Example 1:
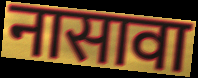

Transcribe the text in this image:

नासावा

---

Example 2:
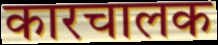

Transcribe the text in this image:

कारचालक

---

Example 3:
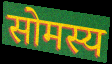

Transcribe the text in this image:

सोमस्य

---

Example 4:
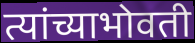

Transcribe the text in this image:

त्यांच्याभोवती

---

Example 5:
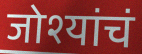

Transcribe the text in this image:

जोश्यांचं